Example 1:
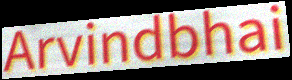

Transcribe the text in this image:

Arvindbhai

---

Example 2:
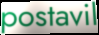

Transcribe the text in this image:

postavil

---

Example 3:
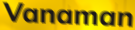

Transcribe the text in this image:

Vanaman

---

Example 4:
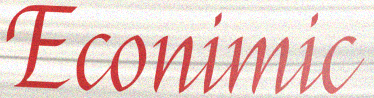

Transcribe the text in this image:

Econimic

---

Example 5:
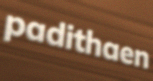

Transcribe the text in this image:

padithaen